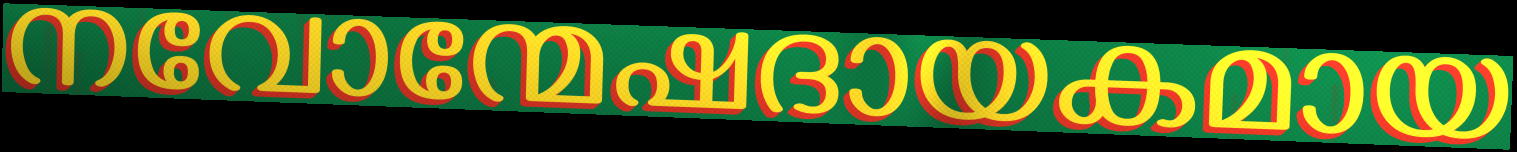
നവോന്മേഷദായകമായ